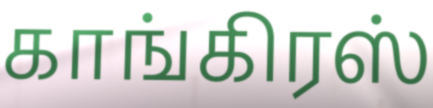
காங்கிரஸ்